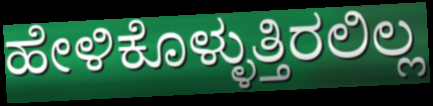
ಹೇಳಿಕೊಳ್ಳುತ್ತಿರಲಿಲ್ಲ